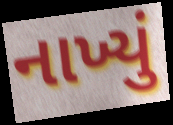
નાખ્યું